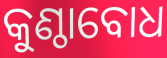
କୁଣ୍ଠାବୋଧ